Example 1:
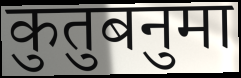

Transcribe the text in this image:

कुतुबनुमा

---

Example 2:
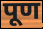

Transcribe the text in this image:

पूण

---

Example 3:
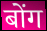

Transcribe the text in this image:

बोंग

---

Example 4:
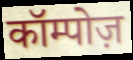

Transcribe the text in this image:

कॉम्पोज़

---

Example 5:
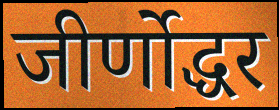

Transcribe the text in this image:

जीर्णोद्धर